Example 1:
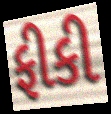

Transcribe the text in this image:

ફીકી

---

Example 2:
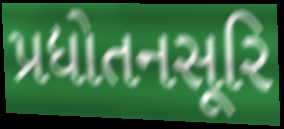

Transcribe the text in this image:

પ્રદ્યોતનસૂરિ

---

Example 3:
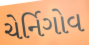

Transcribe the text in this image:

ચેર્નિગોવ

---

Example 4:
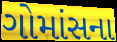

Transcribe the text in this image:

ગોમાંસના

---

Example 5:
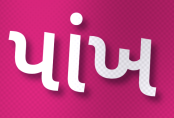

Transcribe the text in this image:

પાંખ